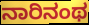
ನಾರಿನಂಥ